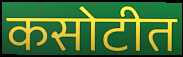
कसोटीत